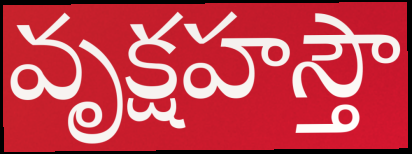
వృక్షహస్తౌ